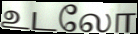
உடலோ